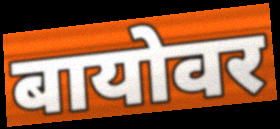
बायोवर